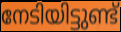
നേടിയിട്ടുണ്ട്